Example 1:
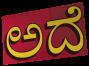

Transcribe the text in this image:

ಅದೆ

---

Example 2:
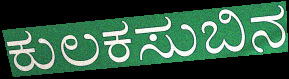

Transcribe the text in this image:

ಕುಲಕಸುಬಿನ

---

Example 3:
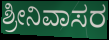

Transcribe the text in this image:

ಶ್ರೀನಿವಾಸರ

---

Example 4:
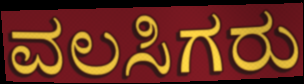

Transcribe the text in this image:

ವಲಸಿಗರು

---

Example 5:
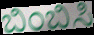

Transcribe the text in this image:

ಬಿಂಬಿಸಿ